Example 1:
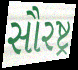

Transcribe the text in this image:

સૌરષ્ટ્ર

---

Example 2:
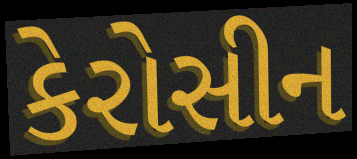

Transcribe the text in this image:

કેરોસીન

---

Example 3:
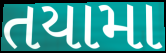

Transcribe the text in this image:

તયામા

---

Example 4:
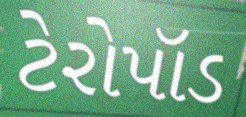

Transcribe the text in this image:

ટેરોપૉડ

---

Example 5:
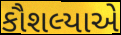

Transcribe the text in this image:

કૌશલ્યાએ